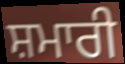
ਸ਼ਮਾਰੀ